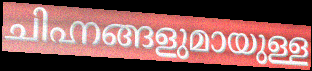
ചിഹ്നങ്ങളുമായുള്ള